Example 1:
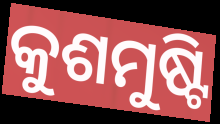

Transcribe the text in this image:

କୁଶମୁଷ୍ଟି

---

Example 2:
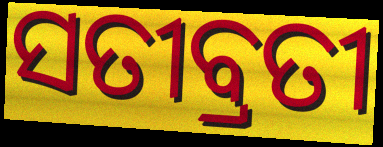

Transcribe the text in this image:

ସତୀବ୍ରତୀ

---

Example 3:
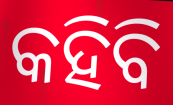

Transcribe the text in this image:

କହିବି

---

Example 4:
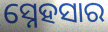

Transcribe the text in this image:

ସ୍ନେହସାର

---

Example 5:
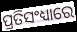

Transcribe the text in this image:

ପ୍ରତିସଂଧ୍ୟାରେ